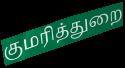
குமரித்துறை